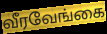
வீரவேங்கை